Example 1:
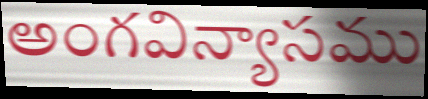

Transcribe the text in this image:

అంగవిన్యాసము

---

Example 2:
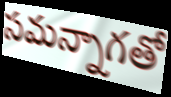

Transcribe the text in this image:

సమన్నాగతో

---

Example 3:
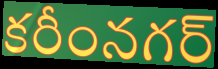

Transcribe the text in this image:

కరీంనగర్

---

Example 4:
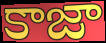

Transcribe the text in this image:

కాజా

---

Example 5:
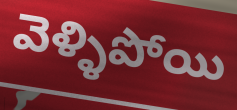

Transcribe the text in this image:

వెళ్ళిపోయి